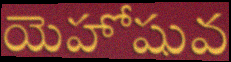
యెహోషువ